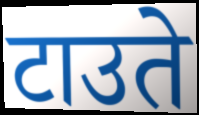
टाउते